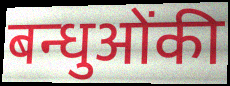
बन्धुओंकी